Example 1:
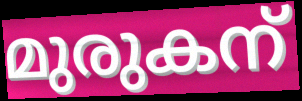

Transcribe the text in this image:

മുരുകന്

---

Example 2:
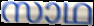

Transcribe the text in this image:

സാഥ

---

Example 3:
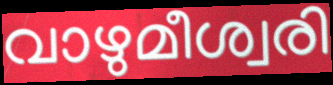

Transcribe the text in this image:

വാഴുമീശ്വരി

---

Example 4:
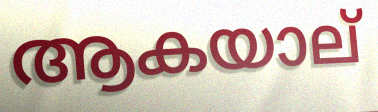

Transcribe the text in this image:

ആകയാല്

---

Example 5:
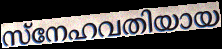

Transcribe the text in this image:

സ്നേഹവതിയായ